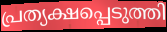
പ്രത്യക്ഷപ്പെടുത്തി